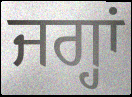
ਜਗ੍ਹਾਂ